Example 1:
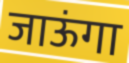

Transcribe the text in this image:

जाऊंगा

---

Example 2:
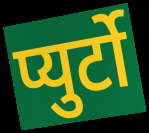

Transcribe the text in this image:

प्युर्टो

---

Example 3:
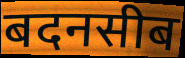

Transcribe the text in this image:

बदनसीब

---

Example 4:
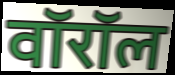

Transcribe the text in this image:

वॉरॉल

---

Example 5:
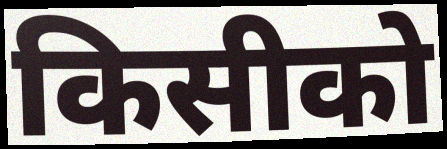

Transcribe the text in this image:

किसीको